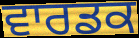
ਵਾਰਡਕ